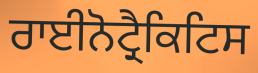
ਰਾਈਨੋਟ੍ਰੈਕਿਟਿਸ